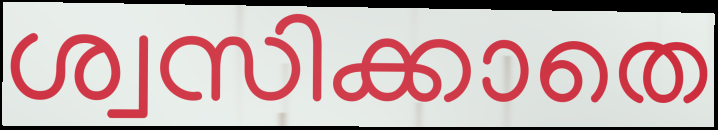
ശ്വസിക്കാതെ